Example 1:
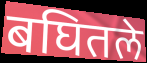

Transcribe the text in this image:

बघितले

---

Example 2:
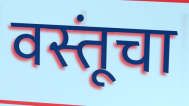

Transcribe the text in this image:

वस्तूंचा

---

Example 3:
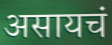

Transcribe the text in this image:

असायचं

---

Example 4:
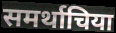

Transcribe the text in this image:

समर्थाचिया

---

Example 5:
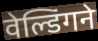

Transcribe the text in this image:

वेल्डिंगने